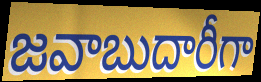
జవాబుదారీగా